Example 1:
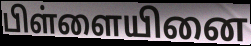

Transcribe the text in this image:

பிள்ளையினை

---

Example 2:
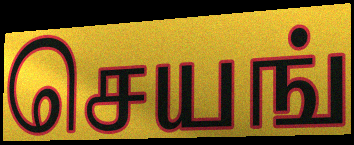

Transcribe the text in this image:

செயங்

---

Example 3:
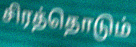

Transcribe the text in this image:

சிரத்தொடும்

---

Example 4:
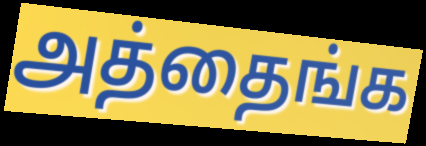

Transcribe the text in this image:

அத்தைங்க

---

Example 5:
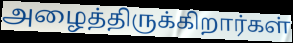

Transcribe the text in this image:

அழைத்திருக்கிறார்கள்